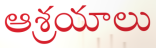
ఆశ్రయాలు